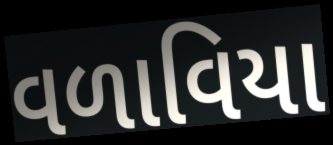
વળાવિયા